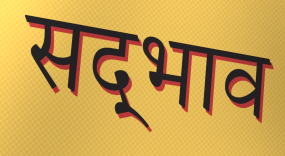
सद्‍भाव